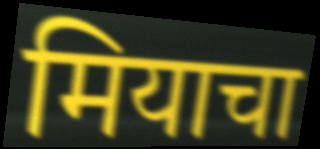
मियाचा